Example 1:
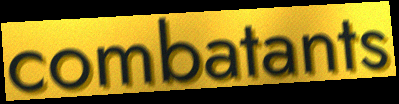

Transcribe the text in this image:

combatants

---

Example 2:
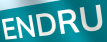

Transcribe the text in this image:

ENDRU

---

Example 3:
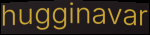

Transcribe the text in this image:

hugginavar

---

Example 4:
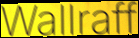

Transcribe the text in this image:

Wallraff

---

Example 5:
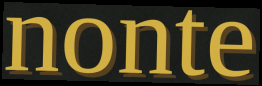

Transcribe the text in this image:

nonte